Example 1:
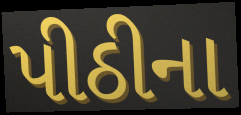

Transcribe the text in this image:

પીઠીના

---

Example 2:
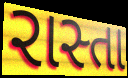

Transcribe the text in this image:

રાસ્તા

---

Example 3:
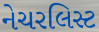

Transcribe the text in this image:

નેચરલિસ્ટ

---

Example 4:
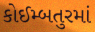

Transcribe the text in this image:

કોઈમ્બતુરમાં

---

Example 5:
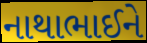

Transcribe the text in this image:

નાથાભાઈને